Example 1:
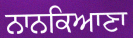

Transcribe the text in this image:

ਨਾਨਕਿਆਣਾ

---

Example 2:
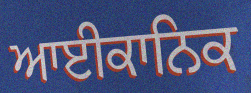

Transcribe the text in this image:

ਆਈਕਾਨਿਕ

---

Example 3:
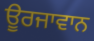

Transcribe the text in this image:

ਊਰਜਾਵਾਨ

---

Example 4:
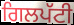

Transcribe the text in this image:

ਗਿਲਪੱਟੀ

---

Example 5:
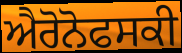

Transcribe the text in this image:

ਐਰੋਨੋਫਸਕੀ